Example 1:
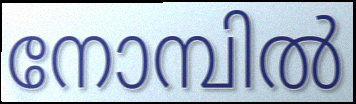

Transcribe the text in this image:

നോമ്പിൽ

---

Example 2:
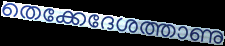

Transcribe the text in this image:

തെക്കേദേശത്താണു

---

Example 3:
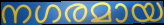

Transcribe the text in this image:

നഗരമായ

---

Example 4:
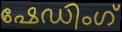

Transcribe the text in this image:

ഷേഡിംഗ്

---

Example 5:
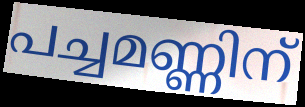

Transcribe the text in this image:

പച്ചമണ്ണിന്